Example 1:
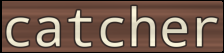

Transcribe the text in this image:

catcher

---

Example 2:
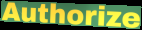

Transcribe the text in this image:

Authorize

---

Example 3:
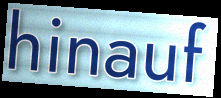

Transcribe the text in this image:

hinauf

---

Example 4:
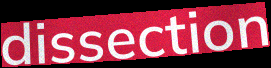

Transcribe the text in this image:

dissection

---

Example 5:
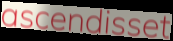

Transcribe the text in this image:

ascendisset